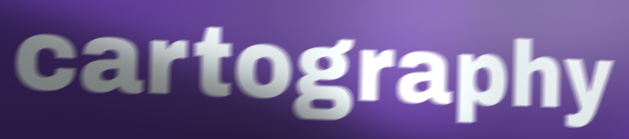
cartography